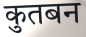
कुतबन